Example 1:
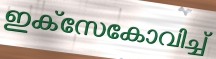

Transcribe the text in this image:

ഇക്‌സേകോവിച്ച്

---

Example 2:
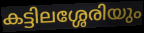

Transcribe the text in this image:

കട്ടിലശ്ശേരിയും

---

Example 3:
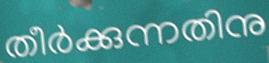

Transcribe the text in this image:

തീർക്കുന്നതിനു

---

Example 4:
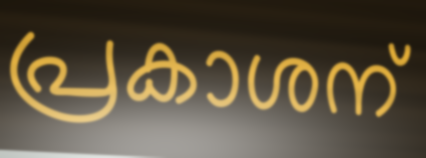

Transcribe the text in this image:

പ്രകാശന്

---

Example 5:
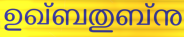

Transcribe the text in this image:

ഉഖ്ബതുബ്നു